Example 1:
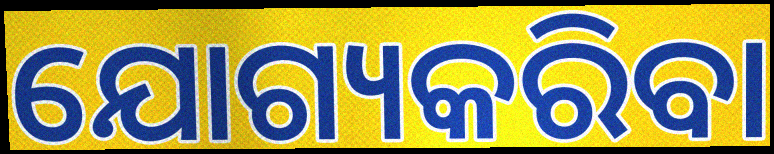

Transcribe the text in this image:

ଯୋଗ୍ୟକରିବା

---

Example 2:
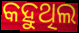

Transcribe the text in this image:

କହୁଥିଲ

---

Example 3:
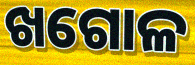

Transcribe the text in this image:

ଖଗୋଳ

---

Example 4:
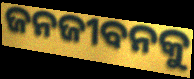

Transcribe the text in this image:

ଜନଜୀବନକୁ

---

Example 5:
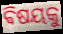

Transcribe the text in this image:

ଵିଷୟକୁ